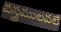
వస్త్రములవలే